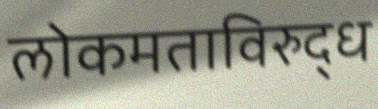
लोकमताविरुद्ध